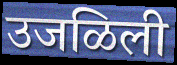
उजळिली